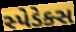
સ્પેડેક્સ